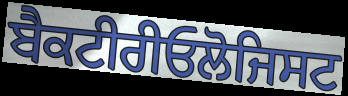
ਬੈਕਟੀਰੀਓਲੋਜਿਸਟ